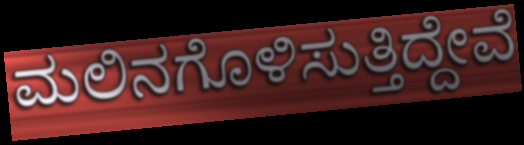
ಮಲಿನಗೊಳಿಸುತ್ತಿದ್ದೇವೆ